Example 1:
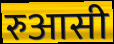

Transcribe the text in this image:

रुआसी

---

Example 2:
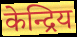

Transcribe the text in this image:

केन्द्रिय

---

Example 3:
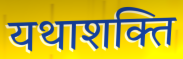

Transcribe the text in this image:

यथाशक्ति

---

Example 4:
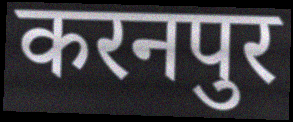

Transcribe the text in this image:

करनपुर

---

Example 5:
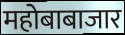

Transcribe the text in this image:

महोबाबाजार